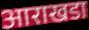
आराखडा